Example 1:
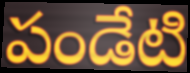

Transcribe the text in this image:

పండేటి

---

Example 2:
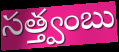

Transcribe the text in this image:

సత్త్వంబు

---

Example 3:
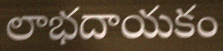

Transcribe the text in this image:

లాభదాయకం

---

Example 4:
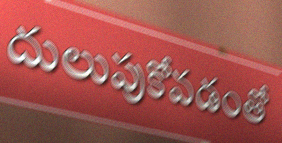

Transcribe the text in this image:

దులుపుకోవడంతో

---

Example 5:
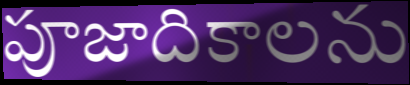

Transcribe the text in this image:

పూజాదికాలను